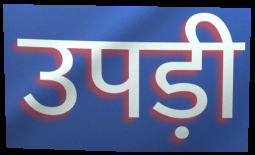
उपड़ी